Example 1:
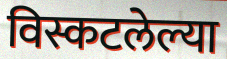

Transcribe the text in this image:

विस्कटलेल्या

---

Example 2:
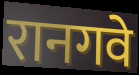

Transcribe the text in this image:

रानगवे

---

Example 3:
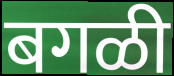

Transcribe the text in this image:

बगळी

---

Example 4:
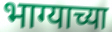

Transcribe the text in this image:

भाग्याच्या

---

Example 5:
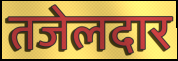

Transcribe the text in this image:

तजेलदार